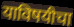
याविषयीचा